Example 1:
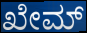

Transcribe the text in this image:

ಖೇಮ್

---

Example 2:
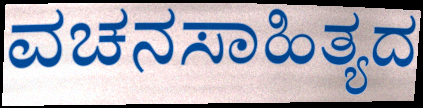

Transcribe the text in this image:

ವಚನಸಾಹಿತ್ಯದ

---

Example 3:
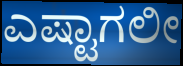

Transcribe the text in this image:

ಎಷ್ಟಾಗಲೀ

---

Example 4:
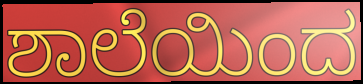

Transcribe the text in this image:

ಶಾಲೆಯಿಂದ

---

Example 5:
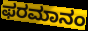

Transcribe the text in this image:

ಫರಮಾನಂ